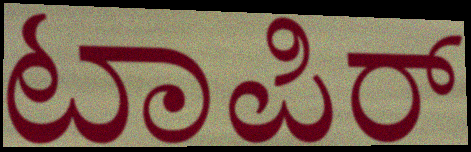
ಟಾಪಿರ್